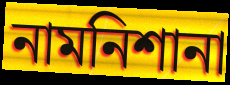
নামনিশানা